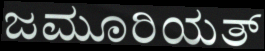
ಜಮೂರಿಯತ್